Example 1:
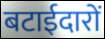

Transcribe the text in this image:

बटाईदारों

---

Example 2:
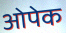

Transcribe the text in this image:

ओपेक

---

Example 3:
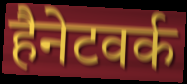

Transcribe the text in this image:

हैनेटवर्क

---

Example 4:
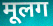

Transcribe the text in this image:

मूलग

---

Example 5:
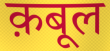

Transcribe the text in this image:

क़बूल